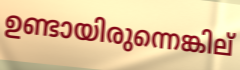
ഉണ്ടായിരുന്നെങ്കില്